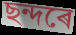
ছন্দৰে